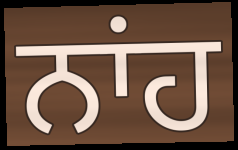
ਨਾਂਹ